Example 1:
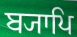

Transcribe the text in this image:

ਬ੍ਯਾਪਿ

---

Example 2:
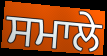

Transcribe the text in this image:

ਸਮਾਲੇ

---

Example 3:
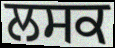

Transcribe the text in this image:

ਲਸਕ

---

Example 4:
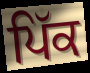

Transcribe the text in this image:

ਪਿੱਕ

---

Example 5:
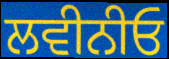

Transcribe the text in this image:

ਲਵੀਨੀਓ